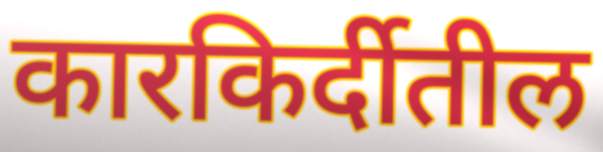
कारकिर्दीतील